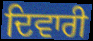
ਦਿਵਾਰੀ